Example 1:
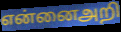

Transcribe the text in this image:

என்னைஅறி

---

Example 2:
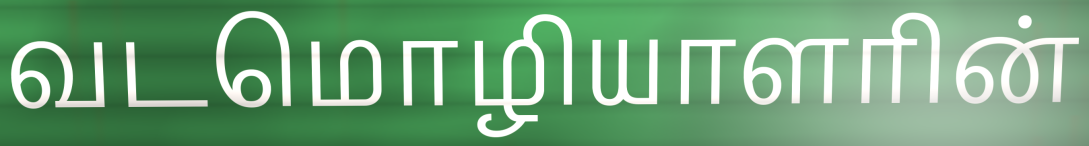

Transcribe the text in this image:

வடமொழியாளரின்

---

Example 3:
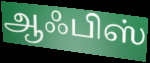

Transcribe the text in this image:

ஆஃபிஸ்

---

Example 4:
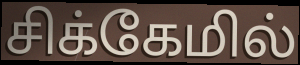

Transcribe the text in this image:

சிக்கேமில்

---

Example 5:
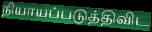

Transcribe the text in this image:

நியாயப்படுத்திவிட